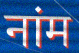
नांम